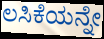
ಲಸಿಕೆಯನ್ನೇ